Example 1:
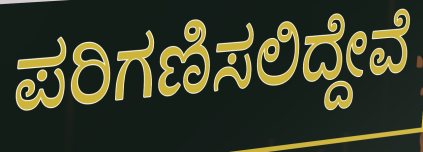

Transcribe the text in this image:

ಪರಿಗಣಿಸಲಿದ್ದೇವೆ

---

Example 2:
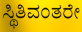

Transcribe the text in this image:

ಸ್ಥಿತಿವಂತರೇ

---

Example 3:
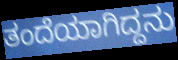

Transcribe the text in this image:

ತಂದೆಯಾಗಿದ್ದನು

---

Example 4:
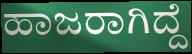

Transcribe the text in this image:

ಹಾಜರಾಗಿದ್ದೆ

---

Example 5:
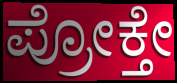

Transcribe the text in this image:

ಪ್ರೋಕ್ತೇ